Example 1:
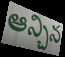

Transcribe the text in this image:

ఆన్చిన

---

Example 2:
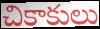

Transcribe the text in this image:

చికాకులు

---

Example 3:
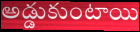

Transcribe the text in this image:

అడ్డుకుంటాయి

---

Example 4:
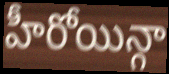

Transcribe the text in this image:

హీరోయిన్గా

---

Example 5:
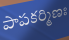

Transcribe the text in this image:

పాపకర్మిణః